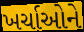
ખર્ચાઓને